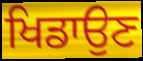
ਖਿਡਾਉਣ